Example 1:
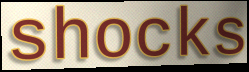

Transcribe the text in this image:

shocks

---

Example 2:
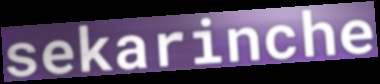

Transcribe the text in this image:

sekarinche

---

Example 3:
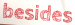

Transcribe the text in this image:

besides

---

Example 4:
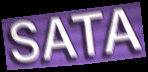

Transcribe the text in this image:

SATA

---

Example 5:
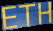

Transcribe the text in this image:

ETH